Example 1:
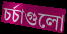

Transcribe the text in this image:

চর্চাগুলো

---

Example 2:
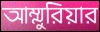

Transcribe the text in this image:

আম্মুরিয়ার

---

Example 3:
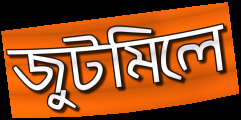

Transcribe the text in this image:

জুটমিলে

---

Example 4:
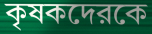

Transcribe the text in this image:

কৃষকদেরকে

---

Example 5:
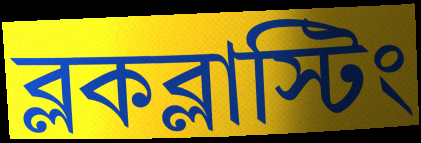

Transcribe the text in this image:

ব্লকব্লাস্টিং